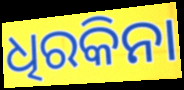
ଧିରକିନା